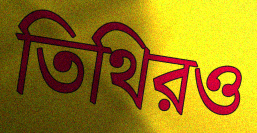
তিথিরও